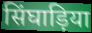
सिंघाड़िया